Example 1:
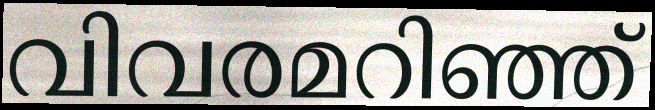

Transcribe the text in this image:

വിവരമറിഞ്ഞ്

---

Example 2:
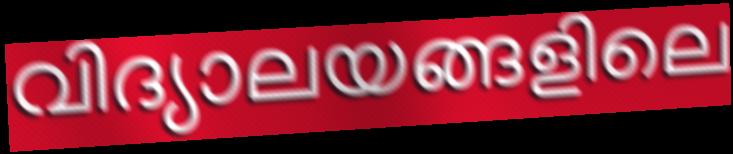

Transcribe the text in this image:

വിദ്യാലയങ്ങളിലെ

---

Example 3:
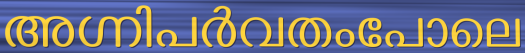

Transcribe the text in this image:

അഗ്നിപർവതംപോലെ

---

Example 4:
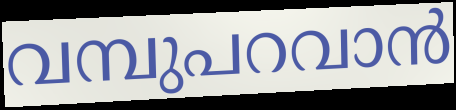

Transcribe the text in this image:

വമ്പുപറവാൻ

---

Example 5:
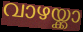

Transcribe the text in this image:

വാഴയ്ക്കാ